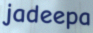
jadeepa